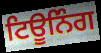
ਟਿਊਨਿੰਗ